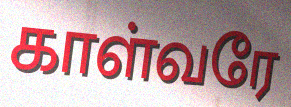
காள்வரே